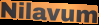
Nilavum